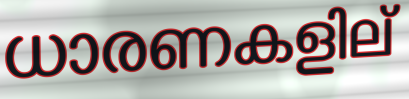
ധാരണകളില്